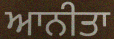
ਆਨੀਤਾ